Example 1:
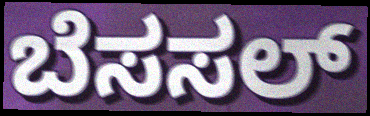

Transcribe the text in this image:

ಬೆಸಸಲ್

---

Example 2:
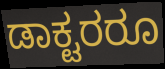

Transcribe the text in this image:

ಡಾಕ್ಟರರೂ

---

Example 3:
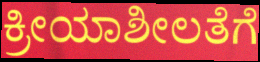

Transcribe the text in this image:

ಕ್ರೀಯಾಶೀಲತೆಗೆ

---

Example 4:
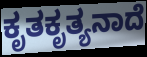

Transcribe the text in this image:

ಕೃತಕೃತ್ಯನಾದೆ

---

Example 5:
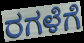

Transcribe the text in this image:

ರಗಳೆಗೆ